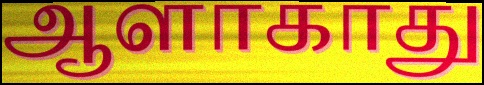
ஆளாகாது